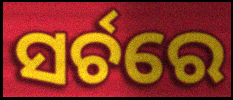
ସର୍ଚରେ